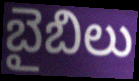
బైబిలు